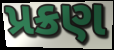
પ્રક્રણ